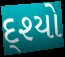
દ્શ્યો